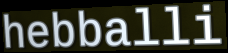
hebballi